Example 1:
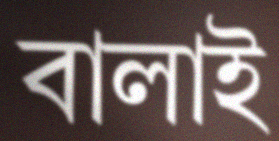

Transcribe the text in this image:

বালাই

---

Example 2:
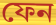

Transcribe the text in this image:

ফেন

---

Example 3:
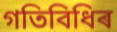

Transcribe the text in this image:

গতিবিধিৰ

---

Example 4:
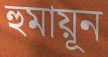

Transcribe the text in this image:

হুমায়ূন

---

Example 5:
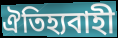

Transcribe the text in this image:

ঐতিহ্যবাহী